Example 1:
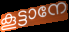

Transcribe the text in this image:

കൂട്ടാനേ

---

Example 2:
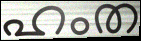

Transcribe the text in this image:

ഹംത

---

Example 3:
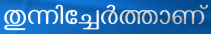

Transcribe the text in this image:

തുന്നിച്ചേർത്താണ്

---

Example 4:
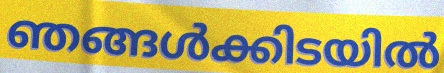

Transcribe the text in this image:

ഞങ്ങൾക്കിടയിൽ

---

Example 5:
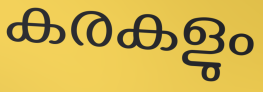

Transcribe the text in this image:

കരകളും